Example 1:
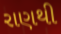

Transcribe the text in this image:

રાણથી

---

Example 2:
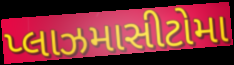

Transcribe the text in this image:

પ્લાઝમાસીટોમા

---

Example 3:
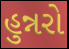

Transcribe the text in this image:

હુન્નરો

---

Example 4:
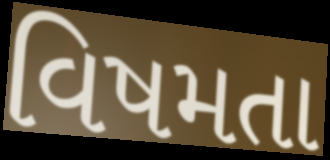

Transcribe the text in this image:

વિષમતા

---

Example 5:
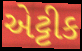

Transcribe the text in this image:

એટ્ટીક